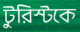
টুরিস্টকে